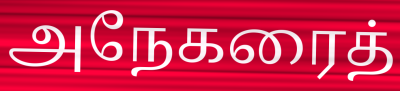
அநேகரைத்